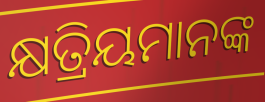
କ୍ଷତ୍ରିୟମାନଙ୍କ